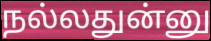
நல்லதுன்னு